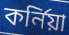
কর্নিয়া